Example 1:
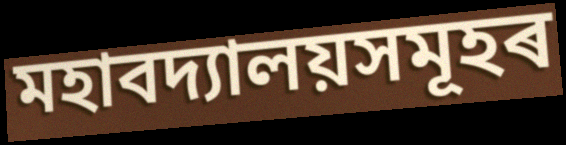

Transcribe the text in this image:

মহাবদ্যালয়সমূহৰ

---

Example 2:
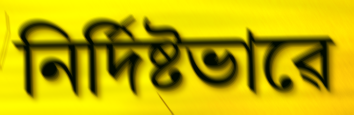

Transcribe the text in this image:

নিৰ্দিষ্টভাৱে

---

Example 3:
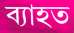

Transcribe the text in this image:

ব্যাহত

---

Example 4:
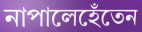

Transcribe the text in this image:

নাপালেহেঁতেন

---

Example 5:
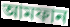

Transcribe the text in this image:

আমফান